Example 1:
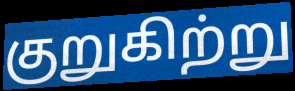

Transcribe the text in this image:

குறுகிற்று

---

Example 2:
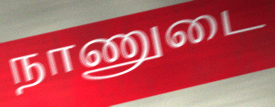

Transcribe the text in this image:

நாணுடை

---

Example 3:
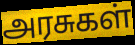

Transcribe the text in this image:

அரசுகள்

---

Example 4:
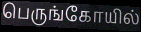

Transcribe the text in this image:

பெருங்கோயில்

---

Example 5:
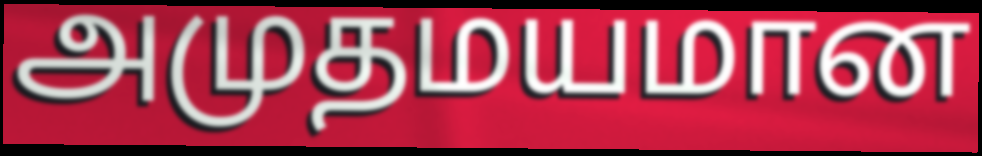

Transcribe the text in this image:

அமுதமயமான